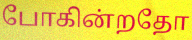
போகின்றதோ